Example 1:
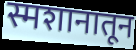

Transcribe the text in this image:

स्मशानातून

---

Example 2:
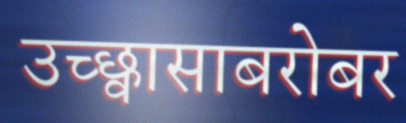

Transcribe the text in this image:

उच्छ्वासाबरोबर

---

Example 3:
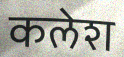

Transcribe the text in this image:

कलेश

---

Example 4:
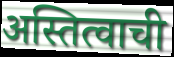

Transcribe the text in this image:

अस्तित्वाची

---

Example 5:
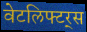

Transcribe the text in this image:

वेटलिफ्टर्स